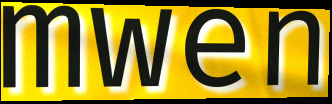
mwen